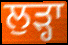
ਲੁੜ੍ਹਾ